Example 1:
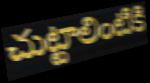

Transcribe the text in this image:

చుట్టాలింటికి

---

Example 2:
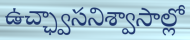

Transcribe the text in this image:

ఉచ్ఛ్వాసనిశ్వాసాల్లో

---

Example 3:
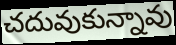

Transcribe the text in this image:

చదువుకున్నావు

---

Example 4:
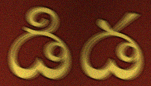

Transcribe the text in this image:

డిడ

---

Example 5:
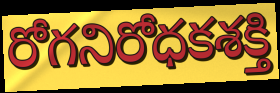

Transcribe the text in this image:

రోగనిరోధకశక్తి